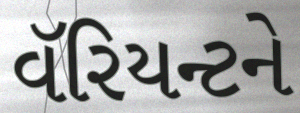
વૅરિયન્ટને